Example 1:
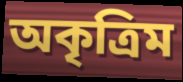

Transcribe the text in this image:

অকৃত্রিম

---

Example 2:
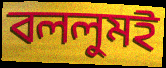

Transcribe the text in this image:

বললুমই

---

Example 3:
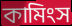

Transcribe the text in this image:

কামিংস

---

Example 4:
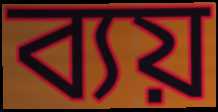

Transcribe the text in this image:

ব্যয়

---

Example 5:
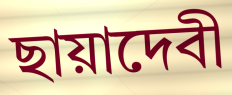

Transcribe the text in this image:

ছায়াদেবী